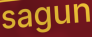
sagun